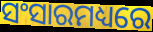
ସଂସାରମଧ୍ୟରେ